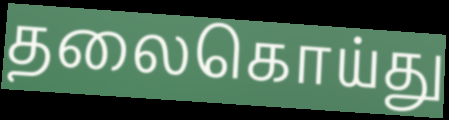
தலைகொய்து